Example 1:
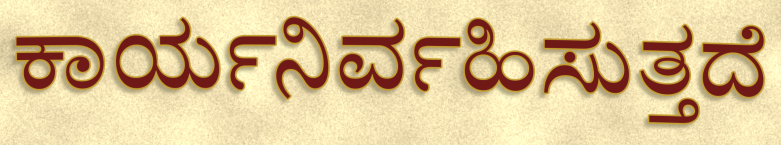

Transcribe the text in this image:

ಕಾರ್ಯನಿರ್ವಹಿಸುತ್ತದೆ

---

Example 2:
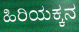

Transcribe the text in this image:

ಹಿರಿಯಕ್ಕನ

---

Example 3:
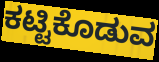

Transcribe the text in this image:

ಕಟ್ಟಿಕೊಡುವ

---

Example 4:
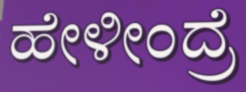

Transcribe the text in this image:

ಹೇಳೀಂದ್ರೆ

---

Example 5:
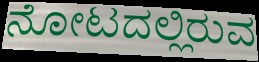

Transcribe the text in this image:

ನೋಟದಲ್ಲಿರುವ